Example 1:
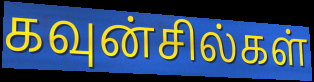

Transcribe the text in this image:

கவுன்சில்கள்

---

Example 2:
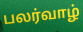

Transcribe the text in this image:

பலர்வாழ்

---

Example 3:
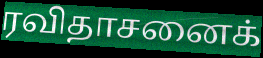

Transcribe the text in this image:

ரவிதாசனைக்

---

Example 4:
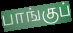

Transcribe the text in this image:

பாங்குப்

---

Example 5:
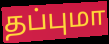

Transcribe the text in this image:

தப்புமா